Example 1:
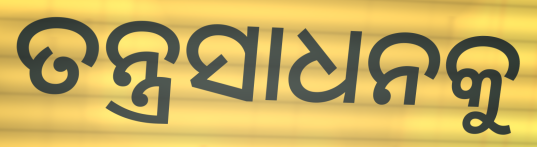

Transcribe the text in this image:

ତନ୍ତ୍ରସାଧନକୁ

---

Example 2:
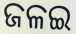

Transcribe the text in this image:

ଜଳଇ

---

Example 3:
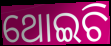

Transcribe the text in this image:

ଥୋଇଚି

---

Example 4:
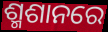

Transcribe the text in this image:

ଶ୍ମଶାନରେ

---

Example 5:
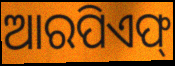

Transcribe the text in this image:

ଆରପିଏଫ୍